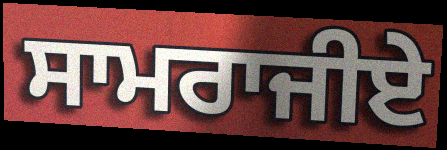
ਸਾਮਰਾਜੀਏ